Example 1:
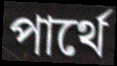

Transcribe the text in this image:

পার্থে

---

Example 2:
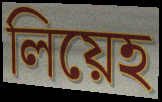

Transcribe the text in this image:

লিয়েহ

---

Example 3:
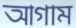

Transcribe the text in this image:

আগাম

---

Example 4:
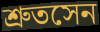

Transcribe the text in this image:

শ্রুতসেন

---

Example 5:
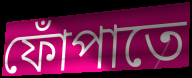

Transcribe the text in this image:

ফোঁপাতে